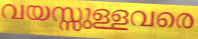
വയസ്സുള്ളവരെ